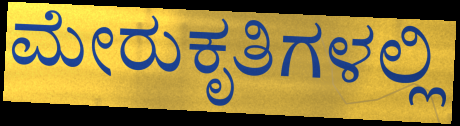
ಮೇರುಕೃತಿಗಳಲ್ಲಿ